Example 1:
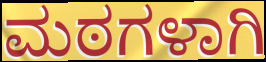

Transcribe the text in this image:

ಮಠಗಳಾಗಿ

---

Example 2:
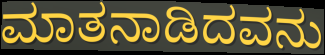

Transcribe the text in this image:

ಮಾತನಾಡಿದವನು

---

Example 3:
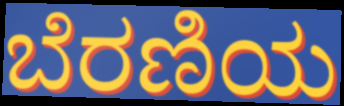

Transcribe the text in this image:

ಬೆರಣಿಯ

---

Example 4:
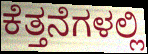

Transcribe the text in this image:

ಕೆತ್ತನೆಗಳಲ್ಲಿ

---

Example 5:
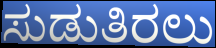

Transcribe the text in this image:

ಸುಡುತಿರಲು